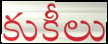
కుకీలు